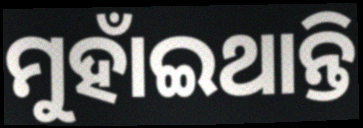
ମୁହାଁଇଥାନ୍ତି